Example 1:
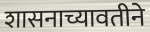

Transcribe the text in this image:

शासनाच्यावतीने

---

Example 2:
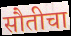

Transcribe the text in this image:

सौतीचा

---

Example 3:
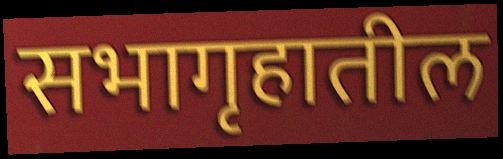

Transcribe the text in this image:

सभागृहातील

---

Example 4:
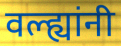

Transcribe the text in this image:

वल्ह्यांनी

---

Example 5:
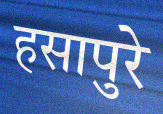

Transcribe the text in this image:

हसापुरे